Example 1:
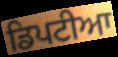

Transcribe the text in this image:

ਡਿਪਟੀਆ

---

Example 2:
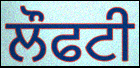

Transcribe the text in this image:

ਲੌਫਟੀ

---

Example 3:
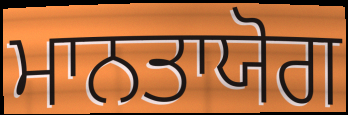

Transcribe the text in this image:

ਮਾਨਤਾਯੋਗ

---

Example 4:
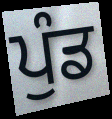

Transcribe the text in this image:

ਪੁੰਡ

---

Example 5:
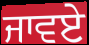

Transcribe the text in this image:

ਜਾਵਏ